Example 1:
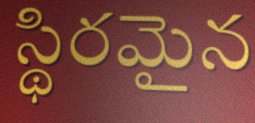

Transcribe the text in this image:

స్థిరమైన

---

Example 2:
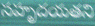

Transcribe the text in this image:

సహృదయతని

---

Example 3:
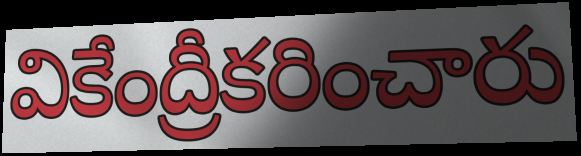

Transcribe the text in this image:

వికేంద్రీకరించారు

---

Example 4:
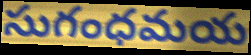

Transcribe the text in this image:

సుగంధమయ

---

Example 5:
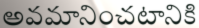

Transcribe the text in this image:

అవమానించటానికి